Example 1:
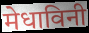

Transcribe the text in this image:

मेधाविनी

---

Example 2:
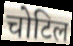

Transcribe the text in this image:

चोटिल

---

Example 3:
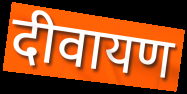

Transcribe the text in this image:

दीवायण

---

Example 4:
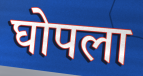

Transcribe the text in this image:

घोपला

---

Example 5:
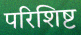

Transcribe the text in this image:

परिशिष्ट